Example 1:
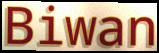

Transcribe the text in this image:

Biwan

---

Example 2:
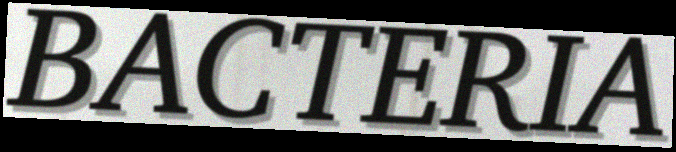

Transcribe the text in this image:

BACTERIA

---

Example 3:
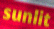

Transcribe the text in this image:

sunlit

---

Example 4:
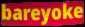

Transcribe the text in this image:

bareyoke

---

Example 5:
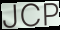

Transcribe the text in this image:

JCP